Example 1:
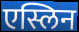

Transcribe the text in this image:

एस्लिन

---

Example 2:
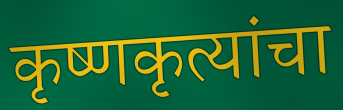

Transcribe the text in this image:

कृष्णकृत्यांचा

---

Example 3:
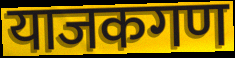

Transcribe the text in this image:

याजकगण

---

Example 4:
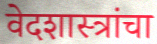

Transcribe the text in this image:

वेदशास्त्रांचा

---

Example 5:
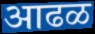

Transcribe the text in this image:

आढळ